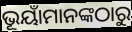
ଭୂୟାଁମାନଙ୍କଠାରୁ